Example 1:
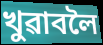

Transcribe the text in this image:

খুৱাবলৈ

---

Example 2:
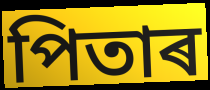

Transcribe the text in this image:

পিতাৰ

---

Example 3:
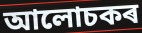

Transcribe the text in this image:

আলোচকৰ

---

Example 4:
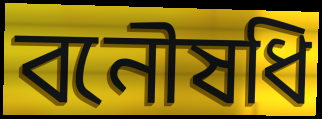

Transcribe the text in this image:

বনৌষধি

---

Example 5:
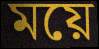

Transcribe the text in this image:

ময়ে